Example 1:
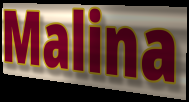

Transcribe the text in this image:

Malina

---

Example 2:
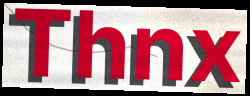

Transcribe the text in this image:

Thnx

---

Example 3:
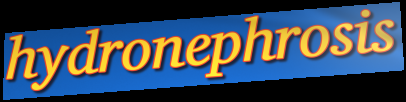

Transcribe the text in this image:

hydronephrosis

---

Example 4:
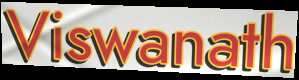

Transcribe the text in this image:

Viswanath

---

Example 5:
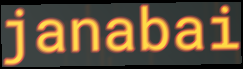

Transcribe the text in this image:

janabai